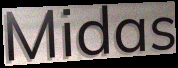
Midas